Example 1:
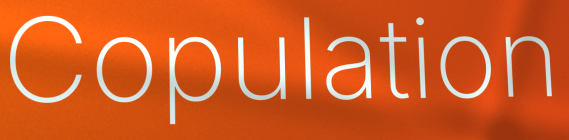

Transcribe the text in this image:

Copulation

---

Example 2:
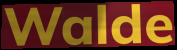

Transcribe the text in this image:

Walde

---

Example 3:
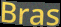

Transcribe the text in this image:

Bras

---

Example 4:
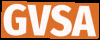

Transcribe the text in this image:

GVSA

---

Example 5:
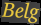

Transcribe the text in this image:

Belg